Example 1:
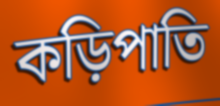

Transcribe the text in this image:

কড়িপাতি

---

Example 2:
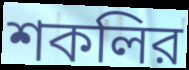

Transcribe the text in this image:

শকলির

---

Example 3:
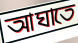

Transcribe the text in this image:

আঘাতে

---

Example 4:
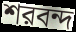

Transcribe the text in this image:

শরবন্দ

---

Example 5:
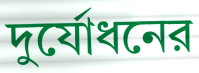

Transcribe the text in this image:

দুর্যোধনের